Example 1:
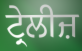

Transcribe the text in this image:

ਟ੍ਰੇਲੀਜ਼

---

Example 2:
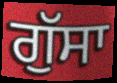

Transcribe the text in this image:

ਗੁੱਸਾ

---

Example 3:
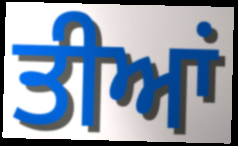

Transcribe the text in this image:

ਤੀਆਂ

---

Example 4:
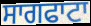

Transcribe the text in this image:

ਸਾਗਫਾਟਾ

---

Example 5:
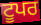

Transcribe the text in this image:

ਟੂਪਰ